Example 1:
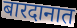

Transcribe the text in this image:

बारदानात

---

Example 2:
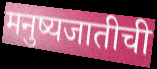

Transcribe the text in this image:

मनुष्यजातीची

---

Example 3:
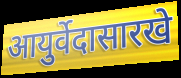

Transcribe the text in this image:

आयुर्वेदासारखे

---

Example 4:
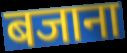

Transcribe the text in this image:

बजाना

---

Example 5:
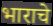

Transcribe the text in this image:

भाराचे